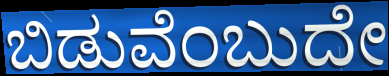
ಬಿಡುವೆಂಬುದೇ